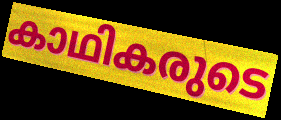
കാഥികരുടെ